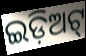
ଇଡ଼ିଅଟ୍